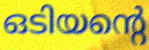
ഒടിയന്റെ